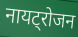
नायट्रोजन